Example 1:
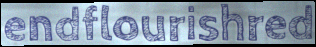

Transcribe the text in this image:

endflourishred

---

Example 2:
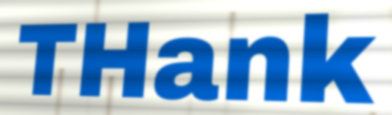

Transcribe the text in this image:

THank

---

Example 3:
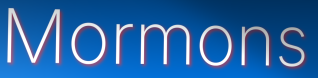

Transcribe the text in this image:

Mormons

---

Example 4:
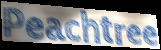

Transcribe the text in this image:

Peachtree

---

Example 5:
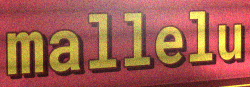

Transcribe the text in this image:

mallelu